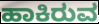
ಹಾಕಿರುವ